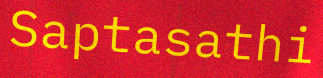
Saptasathi